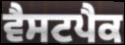
ਵੈਸਟਪੈਕ